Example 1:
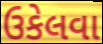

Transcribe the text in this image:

ઉકેલવા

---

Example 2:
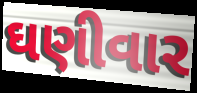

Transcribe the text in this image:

ઘણીવાર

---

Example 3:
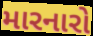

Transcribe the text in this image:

મારનારો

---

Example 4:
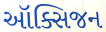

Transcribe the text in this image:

ઑક્સિજન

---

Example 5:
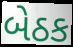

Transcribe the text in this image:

બેઠક